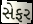
સેફર